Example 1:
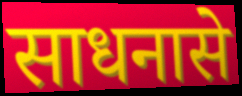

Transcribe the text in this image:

साधनासे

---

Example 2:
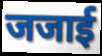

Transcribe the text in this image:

जजाई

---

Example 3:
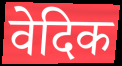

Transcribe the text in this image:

वेदिक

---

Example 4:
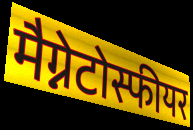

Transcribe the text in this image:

मैग्नेटोस्फीयर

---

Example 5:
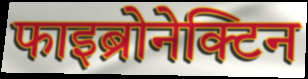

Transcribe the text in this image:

फाइब्रोनेक्टिन